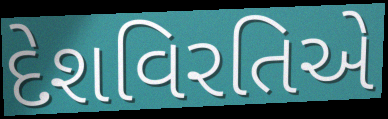
દેશવિરતિએ